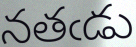
నతఁడు